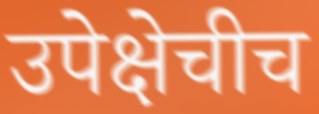
उपेक्षेचीच